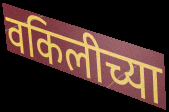
वकिलीच्या